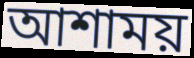
আশাময়